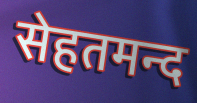
सेहतमन्द